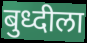
बुध्दीला